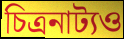
চিত্রনাট্যও